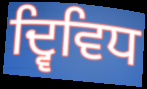
ਦ੍ਵਿਵਿਧ